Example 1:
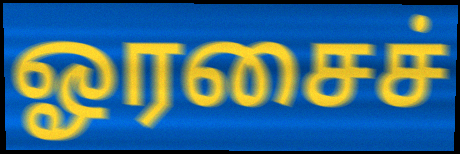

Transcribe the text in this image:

ஓரசைச்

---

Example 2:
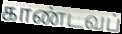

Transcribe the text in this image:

காண்டவப்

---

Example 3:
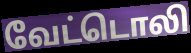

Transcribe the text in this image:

வேட்டொலி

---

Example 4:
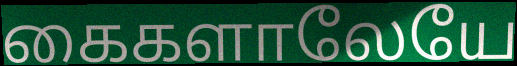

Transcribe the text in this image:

கைகளாலேயே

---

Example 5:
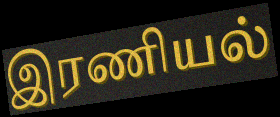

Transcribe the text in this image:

இரணியல்